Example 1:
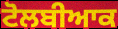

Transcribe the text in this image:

ਟੋਲਬੀਆਕ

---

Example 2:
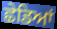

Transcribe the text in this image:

ਛੇਡਿਆਂ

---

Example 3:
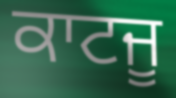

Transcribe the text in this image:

ਕਾਟਜੂ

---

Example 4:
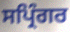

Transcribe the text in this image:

ਸਪ੍ਰਿੰਗਰ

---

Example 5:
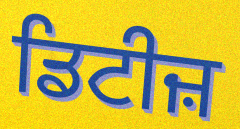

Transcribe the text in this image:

ਡਿਟੀਜ਼